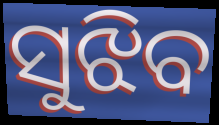
ସୁଝିବ